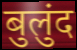
बुलुंद